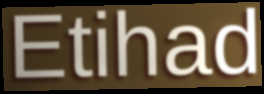
Etihad